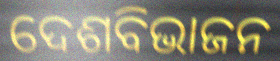
ଦେଶବିଭାଜନ